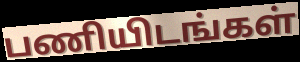
பணியிடங்கள்